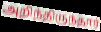
அறிந்திருந்தார்